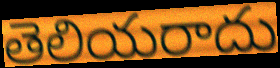
తెలియరాదు